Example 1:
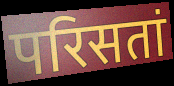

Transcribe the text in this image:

परिसतां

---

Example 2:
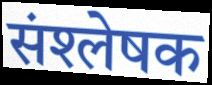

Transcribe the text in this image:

संश्लेषक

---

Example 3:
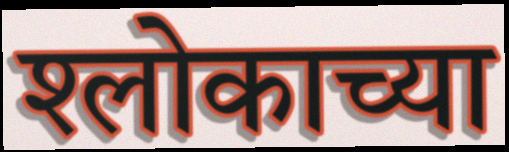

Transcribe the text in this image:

श्लोकाच्या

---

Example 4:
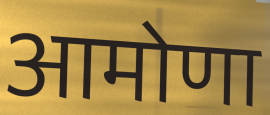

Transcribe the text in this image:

आमोणा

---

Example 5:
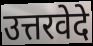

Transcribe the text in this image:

उत्तरवेदे